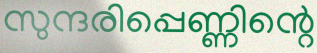
സുന്ദരിപ്പെണ്ണിന്റെ